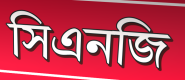
সিএনজি